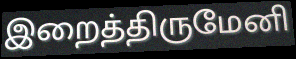
இறைத்திருமேனி